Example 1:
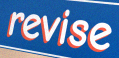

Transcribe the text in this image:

revise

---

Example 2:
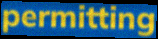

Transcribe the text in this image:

permitting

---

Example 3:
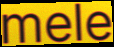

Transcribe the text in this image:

mele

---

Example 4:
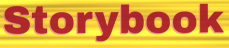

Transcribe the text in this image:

Storybook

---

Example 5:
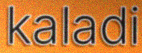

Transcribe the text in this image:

kaladi